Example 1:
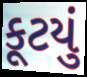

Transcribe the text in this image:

કૂટયું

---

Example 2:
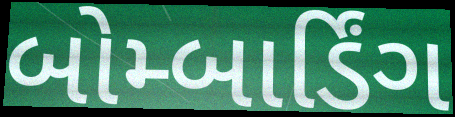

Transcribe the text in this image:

બોમ્બાર્ડિંગ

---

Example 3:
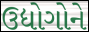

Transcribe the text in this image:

ઉદ્યોગોને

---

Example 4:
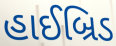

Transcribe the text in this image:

હાઈબ્રિડ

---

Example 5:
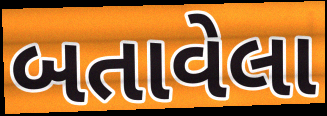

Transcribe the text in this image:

બતાવેલા